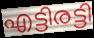
എട്ടിരട്ടി